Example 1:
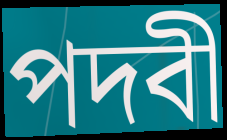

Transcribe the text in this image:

পদবী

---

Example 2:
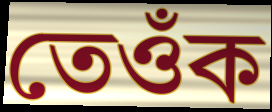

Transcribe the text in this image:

তেওঁক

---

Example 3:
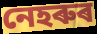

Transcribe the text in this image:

নেহৰুৰ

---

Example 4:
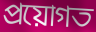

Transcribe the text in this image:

প্ৰয়োগত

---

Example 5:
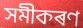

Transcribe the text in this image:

সমীকৰণ